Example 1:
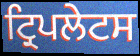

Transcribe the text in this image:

ਟ੍ਰਿਪਲੇਟਸ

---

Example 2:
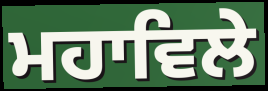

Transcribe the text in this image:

ਮਹਾਵਿਲੇ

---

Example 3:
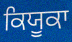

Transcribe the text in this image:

ਕਿਯੂਕਾ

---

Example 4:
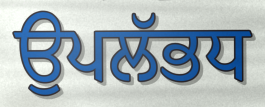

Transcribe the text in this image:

ਉਪਲੱਭਧ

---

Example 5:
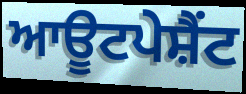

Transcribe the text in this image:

ਆਊਟਪੇਸ਼ੈਂਟ